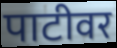
पाटीवर